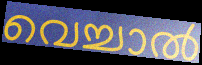
വെച്ചാൽ